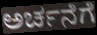
ಅರ್ಚನೆಗೆ